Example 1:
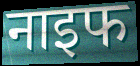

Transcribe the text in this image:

नाइफ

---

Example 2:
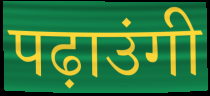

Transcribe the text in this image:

पढ़ाउंगी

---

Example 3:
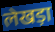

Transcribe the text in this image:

लेखड़ा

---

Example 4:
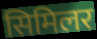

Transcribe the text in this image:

सिमिलर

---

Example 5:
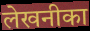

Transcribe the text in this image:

लेखनीका